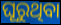
ଘୂରୁଥିବା